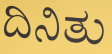
ದಿನಿತು